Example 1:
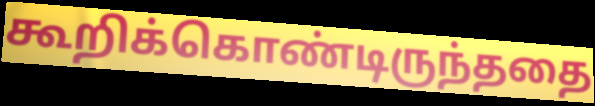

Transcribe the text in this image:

கூறிக்கொண்டிருந்ததை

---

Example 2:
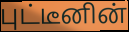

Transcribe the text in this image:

புட்டீனின்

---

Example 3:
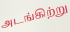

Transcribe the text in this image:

அடங்கிற்று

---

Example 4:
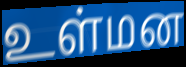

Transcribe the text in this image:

உள்மன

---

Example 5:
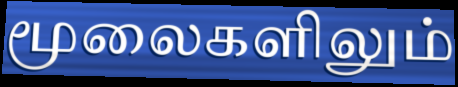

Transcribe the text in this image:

மூலைகளிலும்